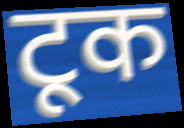
टूक